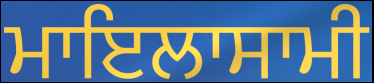
ਮਾਇਲਾਸਾਮੀ